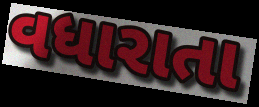
વધારાતા